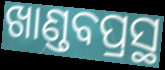
ଖାଣ୍ଡବପ୍ରସ୍ଥ